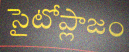
సైటోప్లాజం